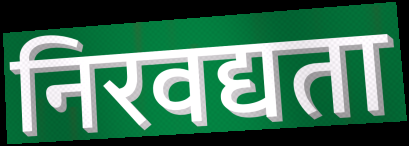
निरवद्यता